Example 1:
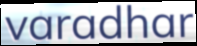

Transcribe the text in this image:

varadhar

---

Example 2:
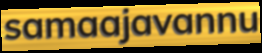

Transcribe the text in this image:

samaajavannu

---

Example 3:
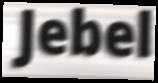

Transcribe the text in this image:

Jebel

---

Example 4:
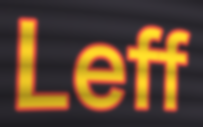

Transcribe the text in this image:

Leff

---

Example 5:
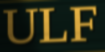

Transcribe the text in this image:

ULF